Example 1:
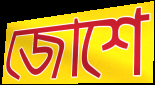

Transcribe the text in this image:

জোশে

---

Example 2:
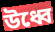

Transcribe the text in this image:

উধ্বে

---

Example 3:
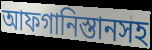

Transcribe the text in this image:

আফগানিস্তানসহ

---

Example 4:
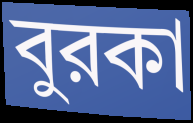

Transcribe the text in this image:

বুরকা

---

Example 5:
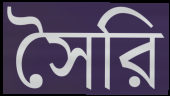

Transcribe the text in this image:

সৈরি